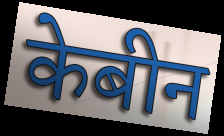
केबीन